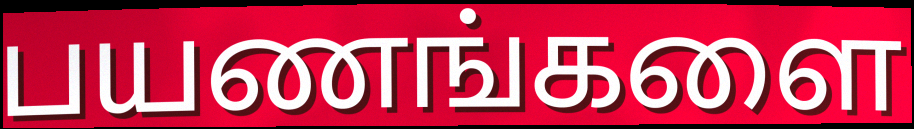
பயணங்களை